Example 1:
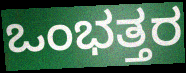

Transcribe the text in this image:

ಒಂಭತ್ತರ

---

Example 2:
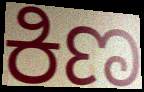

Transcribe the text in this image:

ಕಿಣ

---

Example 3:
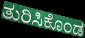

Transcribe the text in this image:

ತುರಿಸಿಕೊಂಡ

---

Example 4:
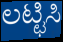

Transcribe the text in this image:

ಲಟ್ಟಿಸಿ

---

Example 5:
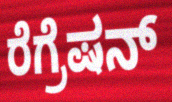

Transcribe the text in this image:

ರೆಗ್ರೆಷನ್